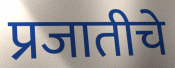
प्रजातीचे